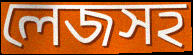
লেজসহ